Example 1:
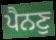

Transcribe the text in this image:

ਪੈਨਣੁ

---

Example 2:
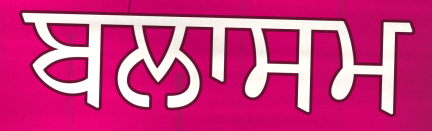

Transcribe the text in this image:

ਬਲਾਸਮ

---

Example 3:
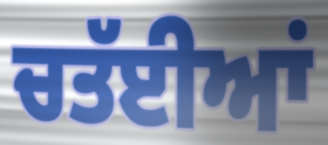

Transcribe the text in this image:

ਚਤੱਈਆਂ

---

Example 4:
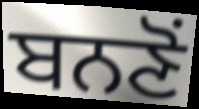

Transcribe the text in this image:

ਬਨਣੋਂ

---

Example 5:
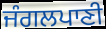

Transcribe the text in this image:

ਜੰਗਲਪਾਣੀ